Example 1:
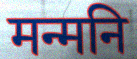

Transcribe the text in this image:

मन्मनि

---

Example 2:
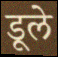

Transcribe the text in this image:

डूले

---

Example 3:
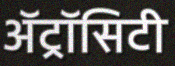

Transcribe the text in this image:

ॲट्रॉसिटी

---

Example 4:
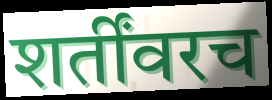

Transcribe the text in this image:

शर्तींवरच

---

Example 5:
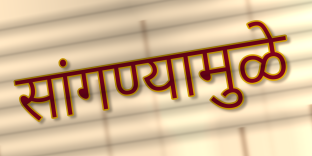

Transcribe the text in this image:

सांगण्यामुळे